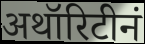
अथॉरिटीनं